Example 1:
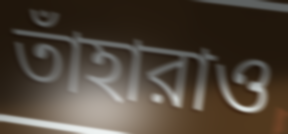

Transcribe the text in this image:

তাঁহারাও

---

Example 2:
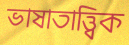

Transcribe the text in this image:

ভাষাতাত্ত্বিক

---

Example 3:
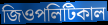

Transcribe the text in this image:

জিওপলিটিকাল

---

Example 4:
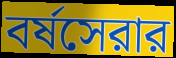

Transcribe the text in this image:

বর্ষসেরার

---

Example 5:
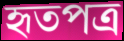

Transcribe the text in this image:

হৃতপত্র